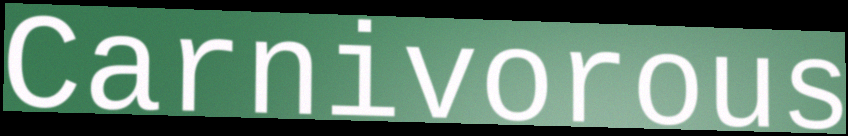
Carnivorous